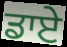
ਡਾਏ